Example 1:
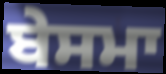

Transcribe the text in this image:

ਬੇਸਮਾ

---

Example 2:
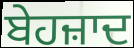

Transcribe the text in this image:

ਬੇਹਜ਼ਾਦ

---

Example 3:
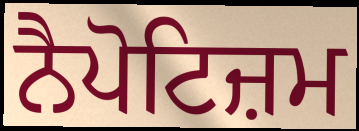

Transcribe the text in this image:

ਨੈਪੋਟਿਜ਼ਮ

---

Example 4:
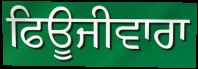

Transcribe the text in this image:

ਫਿਊਜੀਵਾਰਾ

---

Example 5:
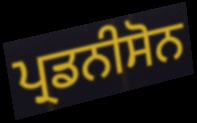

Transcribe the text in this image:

ਪ੍ਰਡਨੀਸੋਨ